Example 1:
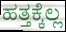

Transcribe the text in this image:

ಹತ್ತಕ್ಕೆಲ್ಲ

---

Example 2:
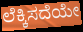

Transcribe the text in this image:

ಲೆಕ್ಕಿಸದೆಯೇ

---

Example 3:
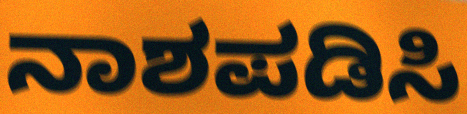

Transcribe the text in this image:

ನಾಶಪಡಿಸಿ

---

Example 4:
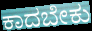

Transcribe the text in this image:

ಕಾದಬೇಕು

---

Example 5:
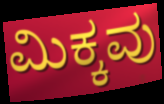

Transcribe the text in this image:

ಮಿಕ್ಕವು